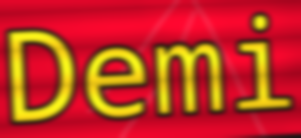
Demi